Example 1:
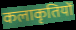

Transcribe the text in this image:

कलाकृतियों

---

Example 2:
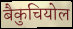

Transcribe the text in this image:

बैकुचियोल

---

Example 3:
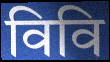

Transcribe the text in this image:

विवि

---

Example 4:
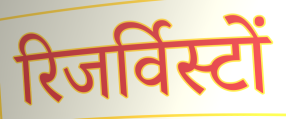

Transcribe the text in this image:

रिजर्विस्टों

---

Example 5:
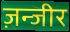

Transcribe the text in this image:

ज़न्जीर